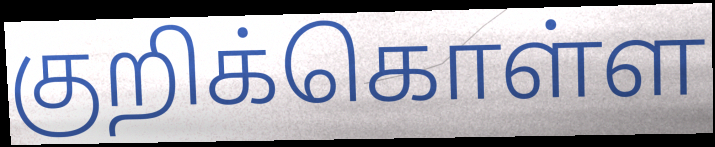
குறிக்கொள்ள